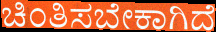
ಚಿಂತಿಸಬೇಕಾಗಿದೆ